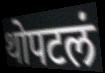
थोपटलं